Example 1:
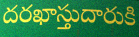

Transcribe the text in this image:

దరఖాస్తుదారుకి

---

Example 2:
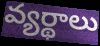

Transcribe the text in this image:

వ్యర్థాలు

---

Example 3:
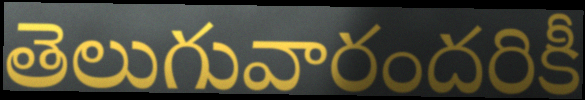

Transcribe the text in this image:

తెలుగువారందరికీ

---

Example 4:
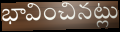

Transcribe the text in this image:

భావించినట్లు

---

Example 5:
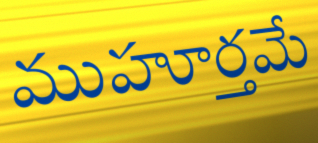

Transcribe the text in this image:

ముహూర్తమే